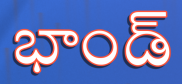
భాండ్